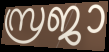
സ്രജാ